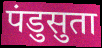
पंडुसुता